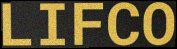
LIFCO